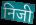
निजी